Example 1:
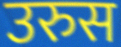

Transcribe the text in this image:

उरुस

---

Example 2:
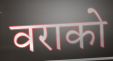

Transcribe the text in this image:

वराको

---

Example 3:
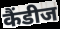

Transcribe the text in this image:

कैंडीज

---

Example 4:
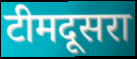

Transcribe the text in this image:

टीमदूसरा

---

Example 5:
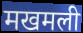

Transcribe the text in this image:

मखमली